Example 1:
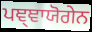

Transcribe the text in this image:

ਪਞ੍ਞਾਯੋਗੇਨ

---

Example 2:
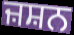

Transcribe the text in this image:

ਜ਼ਸ਼ਨ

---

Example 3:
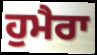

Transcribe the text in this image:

ਹੁਮੈਰਾ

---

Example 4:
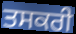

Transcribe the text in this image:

ਤਸਕਰੀ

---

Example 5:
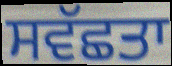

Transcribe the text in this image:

ਸਵੱਛਤਾ